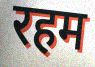
रहम